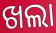
ଖଲା